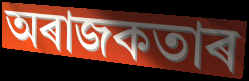
অৰাজকতাৰ